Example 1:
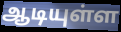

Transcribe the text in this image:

ஆடியுள்ள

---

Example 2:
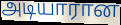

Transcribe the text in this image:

அடியாரான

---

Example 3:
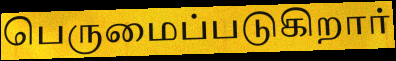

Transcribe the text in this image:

பெருமைப்படுகிறார்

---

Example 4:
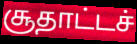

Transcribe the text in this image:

சூதாட்டச்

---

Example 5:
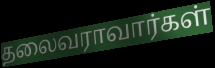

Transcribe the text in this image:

தலைவராவார்கள்